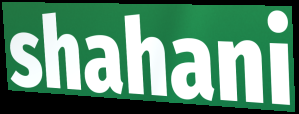
shahani